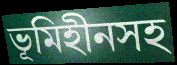
ভূমিহীনসহ